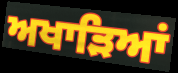
ਅਖਾੜਿਆਂ